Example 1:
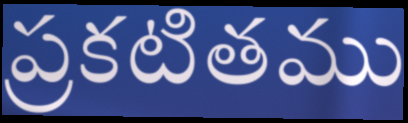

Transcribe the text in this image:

ప్రకటితము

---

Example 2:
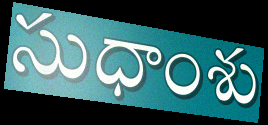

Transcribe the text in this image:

సుధాంశు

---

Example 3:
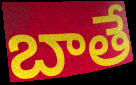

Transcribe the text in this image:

బాతే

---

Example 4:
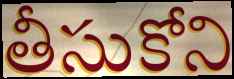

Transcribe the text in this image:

తీసుకోని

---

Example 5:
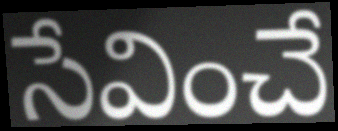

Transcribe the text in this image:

సేవించే